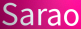
Sarao